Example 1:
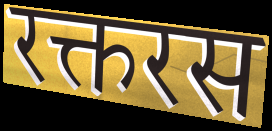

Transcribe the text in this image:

रक्तरस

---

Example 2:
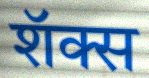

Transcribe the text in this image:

शॅक्स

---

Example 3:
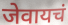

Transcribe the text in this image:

जेवायचं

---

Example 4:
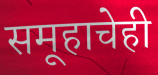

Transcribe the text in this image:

समूहाचेही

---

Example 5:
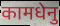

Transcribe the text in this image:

कामधेनु